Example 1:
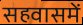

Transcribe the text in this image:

सहवासमें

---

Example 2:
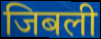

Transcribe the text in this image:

जिबली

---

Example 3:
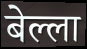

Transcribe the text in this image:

बेल्ला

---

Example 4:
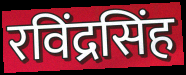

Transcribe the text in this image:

रविंद्रसिंह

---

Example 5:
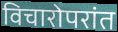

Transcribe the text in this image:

विचारोपरांत